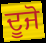
ਦੂਜੋ